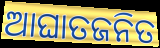
ଆଘାତଜନିତ